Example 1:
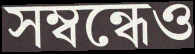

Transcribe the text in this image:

সম্বন্ধেও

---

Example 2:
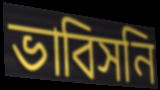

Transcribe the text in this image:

ভাবিসনি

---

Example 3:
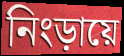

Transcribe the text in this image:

নিংড়ায়ে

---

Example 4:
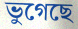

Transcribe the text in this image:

ভুগেছে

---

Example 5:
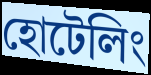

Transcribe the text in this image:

হোটেলিং